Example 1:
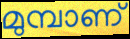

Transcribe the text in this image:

മുമ്പാണ്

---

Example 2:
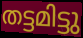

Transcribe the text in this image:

തട്ടമിട്ടു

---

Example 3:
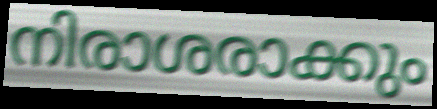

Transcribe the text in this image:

നിരാശരാക്കും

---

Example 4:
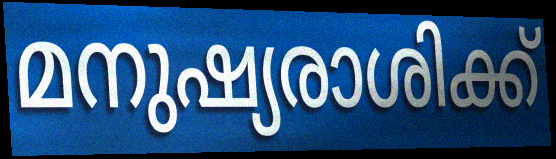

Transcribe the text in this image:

മനുഷ്യരാശിക്ക്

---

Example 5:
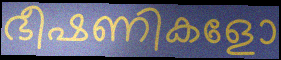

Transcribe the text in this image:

ഭീഷണികളോ